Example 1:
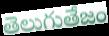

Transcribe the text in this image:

తెలుగుతేజం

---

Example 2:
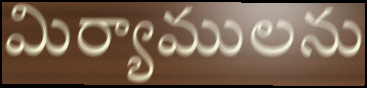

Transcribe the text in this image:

మిర్యాములను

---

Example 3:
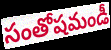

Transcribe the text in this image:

సంతోషమండీ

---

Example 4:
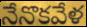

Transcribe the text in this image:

నేనొకవేళ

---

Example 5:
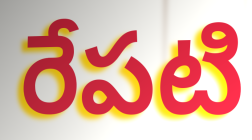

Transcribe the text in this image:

రేపటి